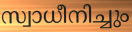
സ്വാധീനിച്ചും